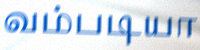
வம்படியா